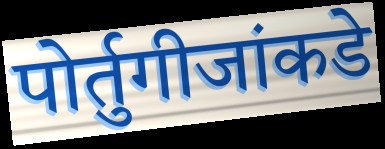
पोर्तुगीजांकडे